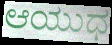
ಆಯುಧ